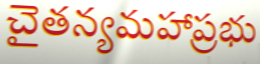
చైతన్యమహాప్రభు